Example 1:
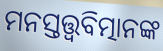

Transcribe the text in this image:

ମନସ୍ତତ୍ତ୍ବବିତ୍ମାନଙ୍କ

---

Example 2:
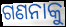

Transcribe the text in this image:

ଗଣନାକୁ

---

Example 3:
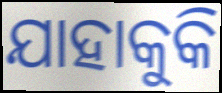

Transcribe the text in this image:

ଯାହାକୁକି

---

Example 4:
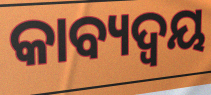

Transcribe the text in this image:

କାବ୍ୟଦ୍ୱୟ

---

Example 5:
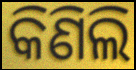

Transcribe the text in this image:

କିଣିଲି